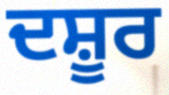
ਦਸ਼ੂਰ